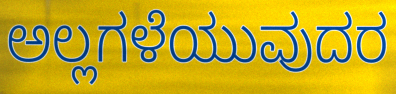
ಅಲ್ಲಗಳೆಯುವುದರ